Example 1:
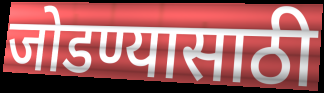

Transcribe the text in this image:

जोडण्यासाठी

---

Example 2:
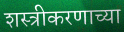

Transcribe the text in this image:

शस्त्रीकरणाच्या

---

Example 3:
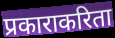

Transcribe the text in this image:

प्रकाराकरिता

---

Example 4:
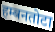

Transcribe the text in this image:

हम्बनतोटा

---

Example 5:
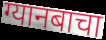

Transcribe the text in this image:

ग्यानबाचा